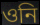
ওনি